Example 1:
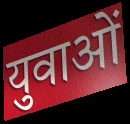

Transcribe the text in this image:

युवाओं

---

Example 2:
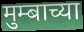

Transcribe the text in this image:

मुम्बाच्या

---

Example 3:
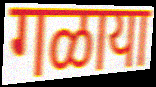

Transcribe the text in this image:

गळाया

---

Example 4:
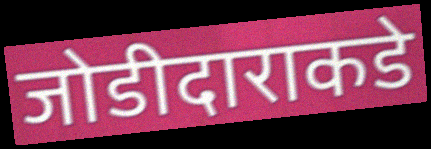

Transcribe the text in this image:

जोडीदाराकडे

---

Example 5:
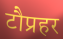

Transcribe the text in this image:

टौप्रहर